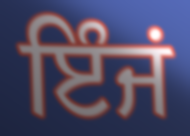
ਇੰਜਂ